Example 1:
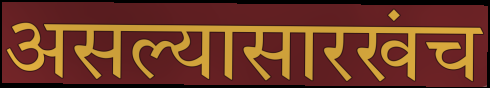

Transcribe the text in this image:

असल्यासारखंच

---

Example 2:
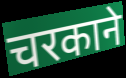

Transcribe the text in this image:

चरकाने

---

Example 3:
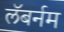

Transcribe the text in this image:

लॅबर्नम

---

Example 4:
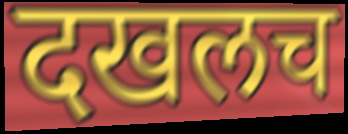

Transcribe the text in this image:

दखलच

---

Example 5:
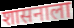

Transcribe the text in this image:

शासनाला